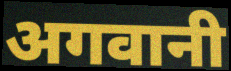
अगवानी